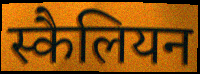
स्कैलियन